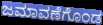
ಜಮಾವಣೆಗೊಂಡ